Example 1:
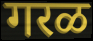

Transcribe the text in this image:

गरळ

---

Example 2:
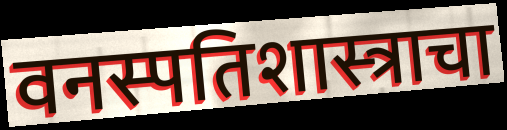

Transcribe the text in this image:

वनस्पतिशास्त्राचा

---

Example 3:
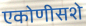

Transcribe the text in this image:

एकोणीसशे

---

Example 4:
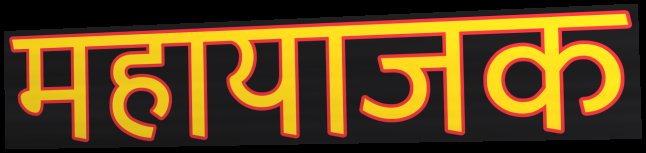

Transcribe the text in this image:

महायाजक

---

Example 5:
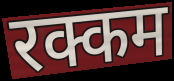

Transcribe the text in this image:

रक्कम